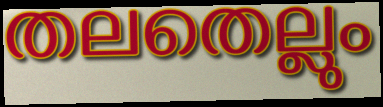
തലതെല്ലും